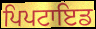
ਪਿਪਟਾਇਡ